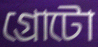
গ্রোটো